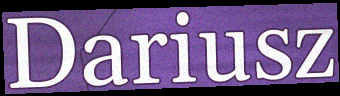
Dariusz